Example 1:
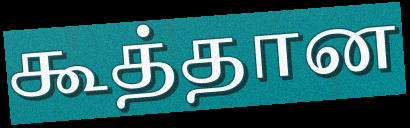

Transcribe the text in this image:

கூத்தான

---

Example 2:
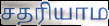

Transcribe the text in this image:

சதரியாம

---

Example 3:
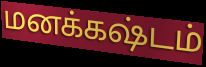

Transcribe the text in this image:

மனக்கஷ்டம்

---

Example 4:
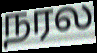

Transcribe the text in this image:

நரல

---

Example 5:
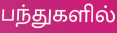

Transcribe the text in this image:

பந்துகளில்